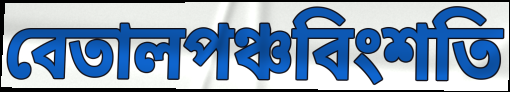
বেতালপঞ্চবিংশতি